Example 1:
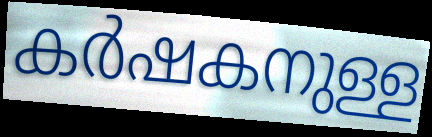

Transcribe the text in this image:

കർഷകനുള്ള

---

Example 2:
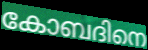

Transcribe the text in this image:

കോബദിനെ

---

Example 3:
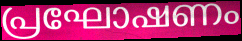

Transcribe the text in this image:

പ്രഘോഷണം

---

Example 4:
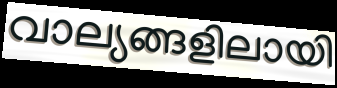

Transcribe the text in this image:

വാല്യങ്ങളിലായി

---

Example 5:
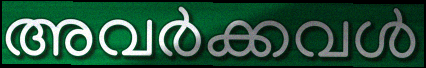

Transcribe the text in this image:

അവർക്കവൾ